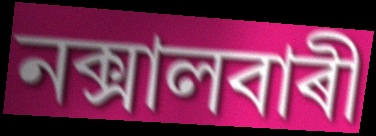
নক্সালবাৰী